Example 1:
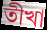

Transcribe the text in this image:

তীখা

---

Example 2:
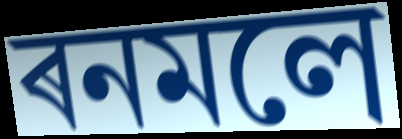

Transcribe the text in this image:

ৰনমলে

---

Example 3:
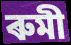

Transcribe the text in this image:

ৰুমী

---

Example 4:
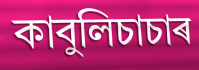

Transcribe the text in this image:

কাবুলিচাচাৰ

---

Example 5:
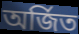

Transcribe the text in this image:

অৰ্জিত